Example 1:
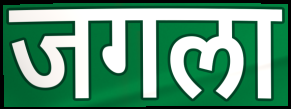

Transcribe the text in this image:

जगला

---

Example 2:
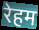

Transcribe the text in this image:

रेहम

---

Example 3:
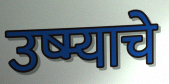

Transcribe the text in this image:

उष्म्याचे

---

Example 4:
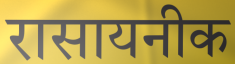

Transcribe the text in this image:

रासायनीक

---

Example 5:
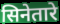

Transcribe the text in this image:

सिनेतारे